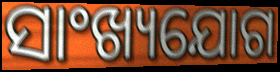
ସାଂଖ୍ଯଯୋଗ